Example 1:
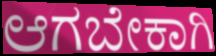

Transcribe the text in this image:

ಆಗಬೇಕಾಗಿ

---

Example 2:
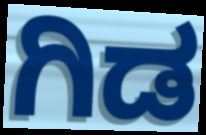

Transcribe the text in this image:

ಗಿಡ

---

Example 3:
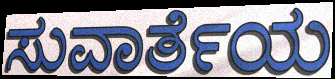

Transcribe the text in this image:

ಸುವಾರ್ತೆಯ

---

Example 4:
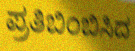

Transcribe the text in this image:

ಪ್ರತಿಬಿಂಬಿಸಿದ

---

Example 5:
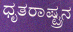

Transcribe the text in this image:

ಧೃತರಾಷ್ಟ್ರನ